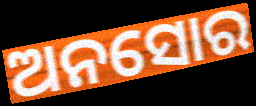
ଅନସୋର